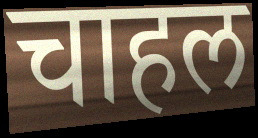
चाहल